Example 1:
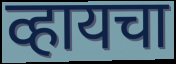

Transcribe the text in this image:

व्हायचा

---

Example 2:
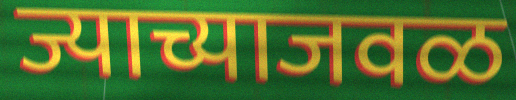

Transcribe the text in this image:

ज्याच्याजवळ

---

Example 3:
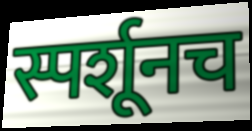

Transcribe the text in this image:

स्पर्शूनच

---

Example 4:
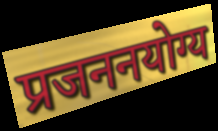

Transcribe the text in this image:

प्रजननयोग्य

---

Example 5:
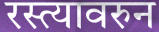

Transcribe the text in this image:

रस्त्यावरुन